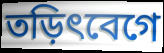
তড়িৎবেগে